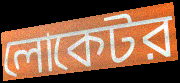
লোকেটর